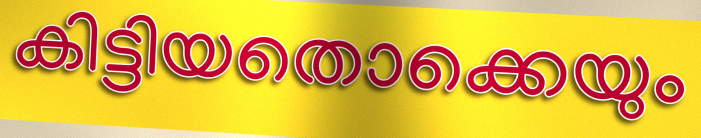
കിട്ടിയതൊക്കെയും